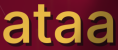
ataa